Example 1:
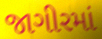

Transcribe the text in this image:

જાગીરમાં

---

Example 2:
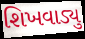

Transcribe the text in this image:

શિખવાડ્યુ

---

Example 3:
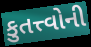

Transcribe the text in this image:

કુતત્ત્વોની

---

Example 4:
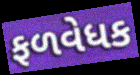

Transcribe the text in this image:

ફળવેધક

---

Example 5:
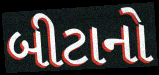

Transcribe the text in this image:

બીટાનો